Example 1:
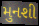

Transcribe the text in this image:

મુનશી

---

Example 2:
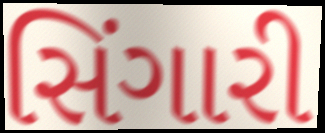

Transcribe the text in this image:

સિંગારી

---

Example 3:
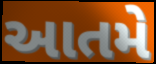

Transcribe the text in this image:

આતમે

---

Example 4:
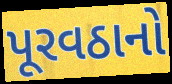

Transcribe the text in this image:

પૂરવઠાનો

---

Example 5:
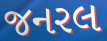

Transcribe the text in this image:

જનરલ